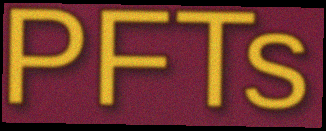
PFTs